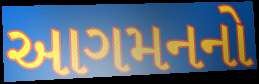
આગમનનો